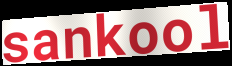
sankool